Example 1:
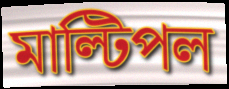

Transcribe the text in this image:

মাল্টিপল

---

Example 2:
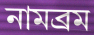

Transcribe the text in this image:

নামব্রম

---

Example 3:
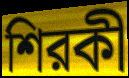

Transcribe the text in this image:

শিরকী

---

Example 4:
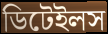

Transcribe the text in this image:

ডিটেইলস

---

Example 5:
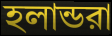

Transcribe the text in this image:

হলান্ডরা